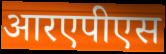
आरएपीएस